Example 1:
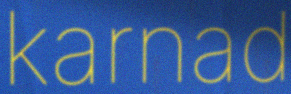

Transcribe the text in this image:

karnad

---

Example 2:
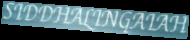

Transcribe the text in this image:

SIDDHALINGAIAH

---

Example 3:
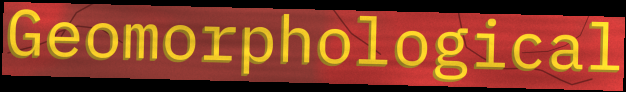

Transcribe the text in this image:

Geomorphological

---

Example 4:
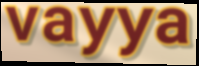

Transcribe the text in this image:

vayya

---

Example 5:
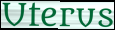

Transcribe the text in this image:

Uterus